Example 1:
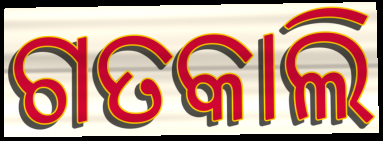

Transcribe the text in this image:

ଗତକାଲି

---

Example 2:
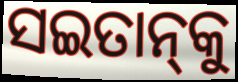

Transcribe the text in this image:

ସଇତାନ୍‌କୁ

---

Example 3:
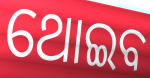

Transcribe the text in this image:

ଥୋଇବ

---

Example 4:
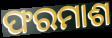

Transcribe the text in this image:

ଫରମାଶ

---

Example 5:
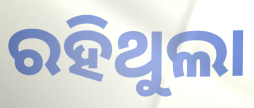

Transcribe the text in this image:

ରହିଥୁଲା